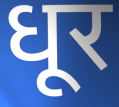
धूर